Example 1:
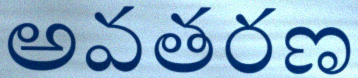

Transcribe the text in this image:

అవతరణ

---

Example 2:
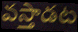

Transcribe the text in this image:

వస్తాడట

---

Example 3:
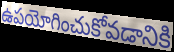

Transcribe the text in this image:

ఉపయోగించుకోవడానికి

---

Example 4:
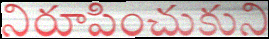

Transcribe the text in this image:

నిరూపించుకుని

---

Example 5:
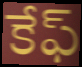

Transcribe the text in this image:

కేఫ్